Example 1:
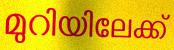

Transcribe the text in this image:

മുറിയിലേക്ക്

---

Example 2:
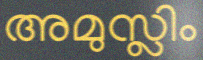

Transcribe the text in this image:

അമുസ്ലിം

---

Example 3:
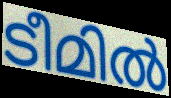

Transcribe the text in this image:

ടീമിൽ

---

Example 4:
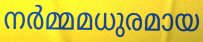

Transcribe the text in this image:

നർമ്മമധുരമായ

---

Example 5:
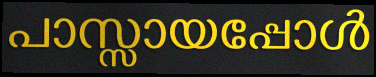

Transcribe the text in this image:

പാസ്സായപ്പോൾ